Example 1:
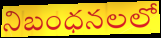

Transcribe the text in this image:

నిబంధనలలో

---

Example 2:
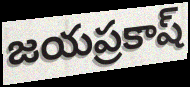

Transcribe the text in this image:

జయప్రకాష్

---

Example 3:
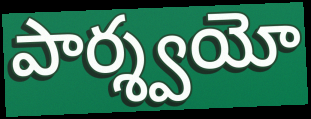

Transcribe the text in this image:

పార్శ్వయో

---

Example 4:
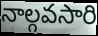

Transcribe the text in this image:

నాల్గవసారి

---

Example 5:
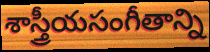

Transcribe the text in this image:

శాస్త్రీయసంగీతాన్ని